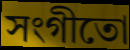
সংগীতো